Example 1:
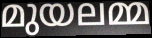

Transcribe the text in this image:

മുയലമ്മ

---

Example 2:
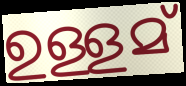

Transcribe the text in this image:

ഉള്ളമ്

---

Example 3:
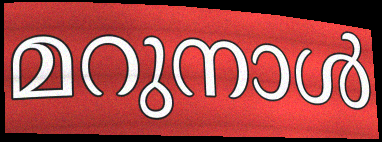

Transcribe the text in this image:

മറുനാൾ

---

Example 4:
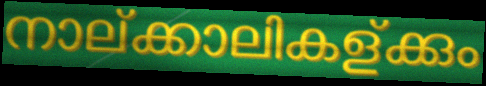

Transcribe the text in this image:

നാല്ക്കാലികള്ക്കും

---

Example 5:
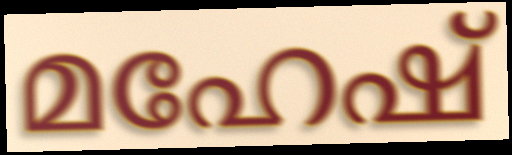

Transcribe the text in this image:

മഹേഷ്